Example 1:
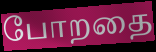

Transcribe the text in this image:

போறதை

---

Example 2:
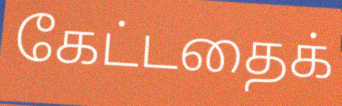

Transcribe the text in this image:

கேட்டதைக்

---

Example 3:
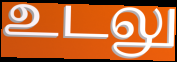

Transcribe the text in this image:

உடலு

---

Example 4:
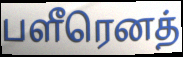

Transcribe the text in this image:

பளீரெனத்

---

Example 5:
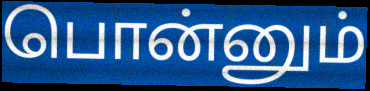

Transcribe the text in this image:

பொன்னும்